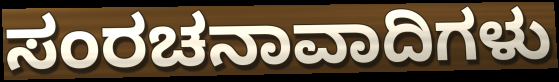
ಸಂರಚನಾವಾದಿಗಳು